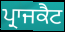
ਪ੍ਰਾਜਕੈਟ